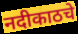
नदीकाठचे